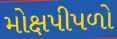
મોક્ષપીપળો